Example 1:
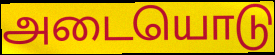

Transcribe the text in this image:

அடையொடு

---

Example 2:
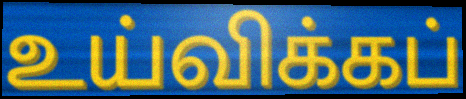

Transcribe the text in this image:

உய்விக்கப்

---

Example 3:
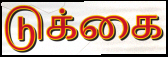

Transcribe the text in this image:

டுக்கை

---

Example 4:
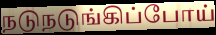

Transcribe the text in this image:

நடுநடுங்கிப்போய்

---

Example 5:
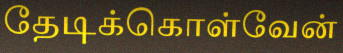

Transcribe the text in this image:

தேடிக்கொள்வேன்